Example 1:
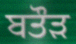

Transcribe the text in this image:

ਬਤੌੜ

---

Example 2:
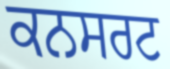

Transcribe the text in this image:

ਕਨਸਰਟ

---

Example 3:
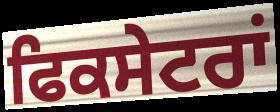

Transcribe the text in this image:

ਫਿਕਸੇਟਰਾਂ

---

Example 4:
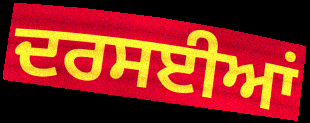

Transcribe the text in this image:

ਦਰਸਈਆਂ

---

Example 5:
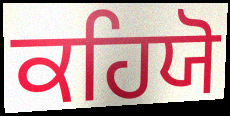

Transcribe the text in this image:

ਕਹਿਯੋ